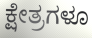
ಕ್ಷೇತ್ರಗಳೂ